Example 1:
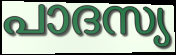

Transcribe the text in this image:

പാദസ്യ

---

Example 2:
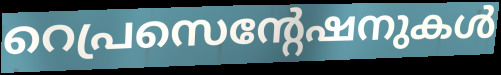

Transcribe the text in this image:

റെപ്രസെന്റേഷനുകൾ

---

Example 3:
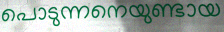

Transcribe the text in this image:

പൊടുന്നനെയുണ്ടായ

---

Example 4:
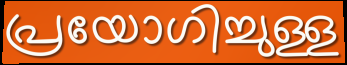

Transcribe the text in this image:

പ്രയോഗിച്ചുള്ള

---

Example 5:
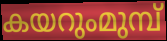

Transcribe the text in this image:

കയറുംമുമ്പ്